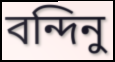
বন্দিনু